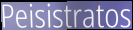
Peisistratos